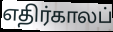
எதிர்காலப்